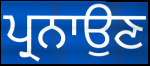
ਪ੍ਰਨਾਉਣ